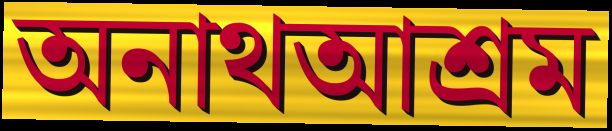
অনাথআশ্রম